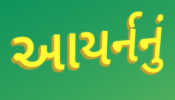
આયર્નનું